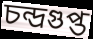
চন্দ্ৰগুপ্ত